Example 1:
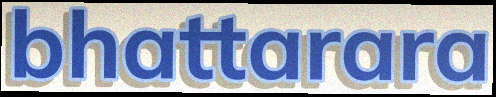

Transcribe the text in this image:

bhattarara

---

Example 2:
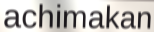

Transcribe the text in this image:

achimakan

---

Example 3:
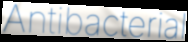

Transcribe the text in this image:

Antibacterial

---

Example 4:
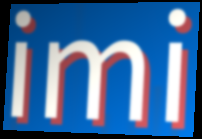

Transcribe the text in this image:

imi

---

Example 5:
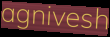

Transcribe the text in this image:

agnivesh